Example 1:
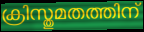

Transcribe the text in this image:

ക്രിസ്തുമതത്തിന്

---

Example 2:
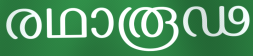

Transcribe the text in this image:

രഥാരൂഢ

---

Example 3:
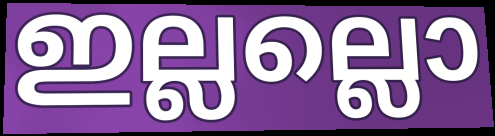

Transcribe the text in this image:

ഇല്ലല്ലൊ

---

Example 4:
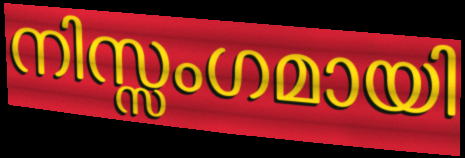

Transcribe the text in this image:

നിസ്സംഗമായി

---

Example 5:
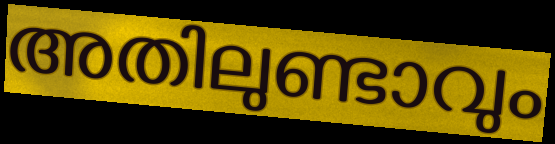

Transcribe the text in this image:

അതിലുണ്ടാവും